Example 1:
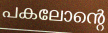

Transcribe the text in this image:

പകലോന്റെ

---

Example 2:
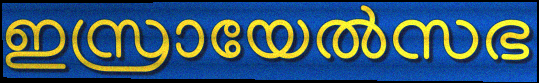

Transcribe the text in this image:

ഇസ്രായേൽസഭ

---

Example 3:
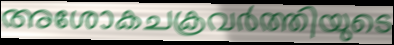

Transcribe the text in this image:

അശോകചക്രവർത്തിയുടെ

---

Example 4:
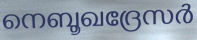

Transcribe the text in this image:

നെബൂഖദ്രേസർ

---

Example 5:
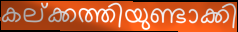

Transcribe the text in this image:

കല്ക്കത്തിയുണ്ടാക്കി